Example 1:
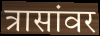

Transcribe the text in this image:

त्रासांवर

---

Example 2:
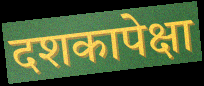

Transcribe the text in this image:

दशकापेक्षा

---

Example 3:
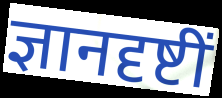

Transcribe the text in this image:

ज्ञानदृष्टीं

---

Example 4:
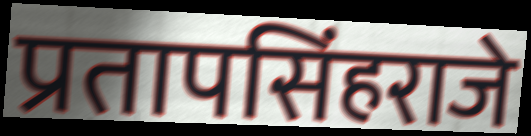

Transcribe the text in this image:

प्रतापसिंहराजे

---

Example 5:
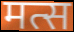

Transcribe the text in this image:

मत्स